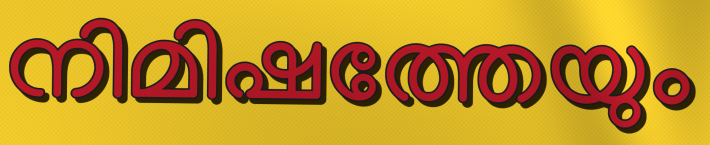
നിമിഷത്തേയും